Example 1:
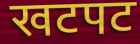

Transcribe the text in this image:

खटपट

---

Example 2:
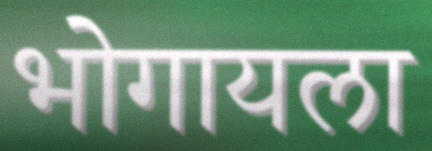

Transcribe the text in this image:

भोगायला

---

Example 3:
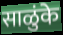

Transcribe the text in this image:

साळुंके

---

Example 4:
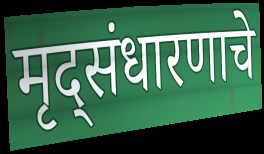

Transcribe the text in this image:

मृद्संधारणाचे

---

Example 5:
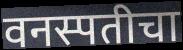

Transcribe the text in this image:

वनस्पतीचा